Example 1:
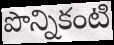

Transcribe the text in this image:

పొన్నికంటి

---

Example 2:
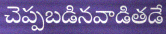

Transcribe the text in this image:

చెప్పబడినవాడితడే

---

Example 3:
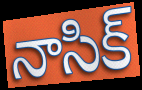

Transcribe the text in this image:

నాసిక్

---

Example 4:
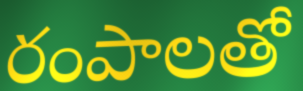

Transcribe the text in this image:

రంపాలతో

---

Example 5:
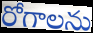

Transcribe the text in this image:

రోగాలను